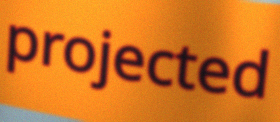
projected